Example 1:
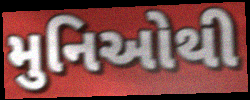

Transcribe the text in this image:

મુનિઓથી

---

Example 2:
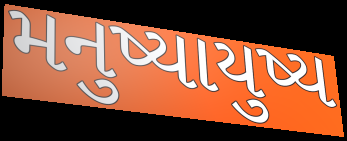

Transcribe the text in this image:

મનુષ્યાયુષ્ય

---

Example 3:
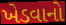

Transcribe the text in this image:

ખેડવાનો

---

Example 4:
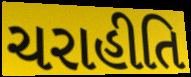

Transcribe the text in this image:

ચરાહીતિ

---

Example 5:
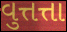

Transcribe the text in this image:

વુત્તત્તા